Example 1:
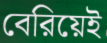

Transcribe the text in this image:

বেরিয়েই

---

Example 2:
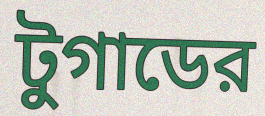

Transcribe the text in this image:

টুগাডের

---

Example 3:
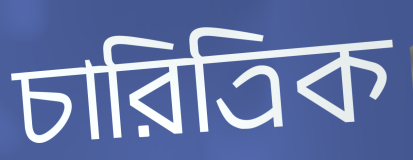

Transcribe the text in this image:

চারিত্রিক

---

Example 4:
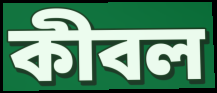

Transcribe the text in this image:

কীবল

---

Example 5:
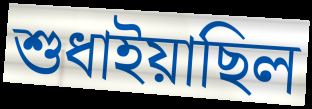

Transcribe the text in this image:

শুধাইয়াছিল